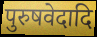
पुरुषवेदादि